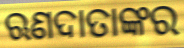
ଋଣଦାତାଙ୍କର